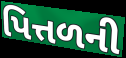
પિત્તળની